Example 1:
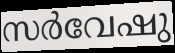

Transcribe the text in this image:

സർവേഷു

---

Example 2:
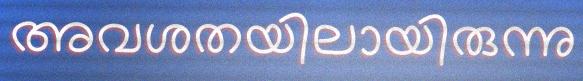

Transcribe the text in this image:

അവശതയിലായിരുന്നു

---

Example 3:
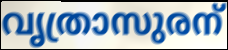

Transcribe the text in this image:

വൃത്രാസുരന്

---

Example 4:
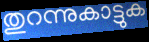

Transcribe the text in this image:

തുറന്നുകാട്ടുക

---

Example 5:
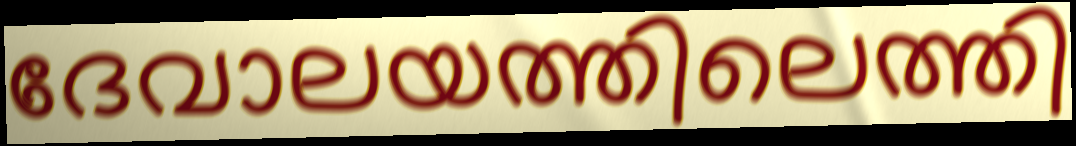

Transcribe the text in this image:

ദേവാലയത്തിലെത്തി